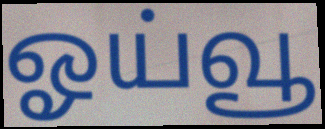
ஓய்வூ